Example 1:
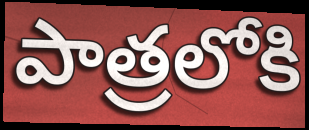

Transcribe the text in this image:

పాత్రలోకి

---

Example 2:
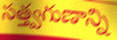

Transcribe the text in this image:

సత్త్వగుణాన్ని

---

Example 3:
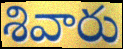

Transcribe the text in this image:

శివారు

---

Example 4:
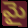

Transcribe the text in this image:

మై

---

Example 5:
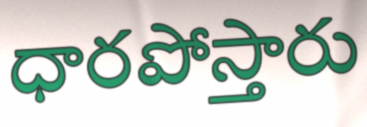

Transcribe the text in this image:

ధారపోస్తారు